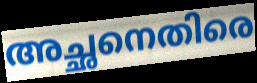
അച്ഛനെതിരെ